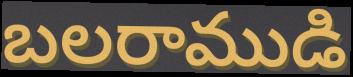
బలరాముడి